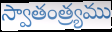
స్వాతంత్ర్యము